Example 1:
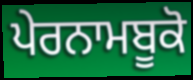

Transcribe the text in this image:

ਪੇਰਨਾਮਬੂਕੋ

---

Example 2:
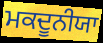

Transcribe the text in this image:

ਮਕਦੂਨੀਯਾ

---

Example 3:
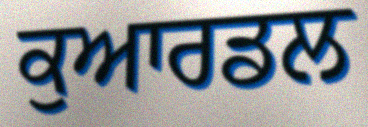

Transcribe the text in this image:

ਕੁਆਰਡਲ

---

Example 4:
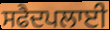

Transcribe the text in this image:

ਸਫੈਦਪਲਾਈ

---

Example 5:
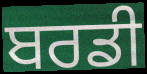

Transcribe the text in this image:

ਬਰਡੀ